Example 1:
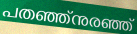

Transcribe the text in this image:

പതഞ്ഞ്നുരഞ്ഞ്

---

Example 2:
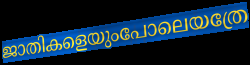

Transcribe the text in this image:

ജാതികളെയുംപോലെയത്രേ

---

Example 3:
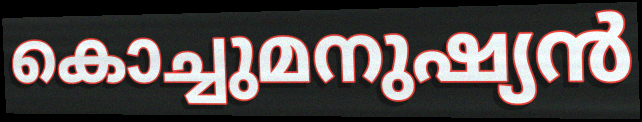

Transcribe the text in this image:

കൊച്ചുമനുഷ്യൻ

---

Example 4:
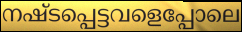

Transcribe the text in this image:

നഷ്ടപ്പെട്ടവളെപ്പോലെ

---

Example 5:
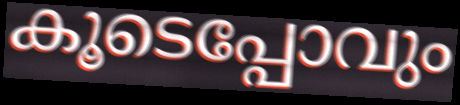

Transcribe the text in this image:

കൂടെപ്പോവും